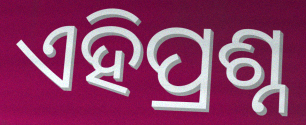
ଏହିପ୍ରଶ୍ନ